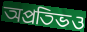
অপ্রতিভও